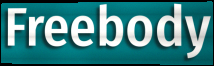
Freebody